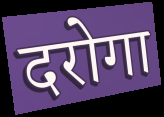
दरोगा